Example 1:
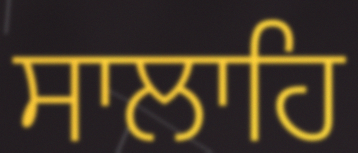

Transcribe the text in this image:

ਸਾਲਾਹਿ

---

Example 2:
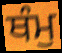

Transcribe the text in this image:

ਥੰਮੁ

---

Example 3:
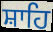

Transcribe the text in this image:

ਸ਼ਾਹਿ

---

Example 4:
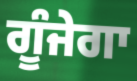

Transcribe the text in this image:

ਗੂੰਜੇਗਾ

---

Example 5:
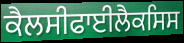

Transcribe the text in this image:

ਕੈਲਸੀਫਾਈਲੈਕਸਿਸ